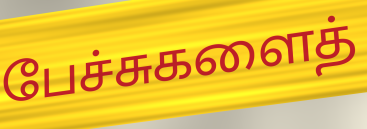
பேச்சுகளைத்